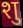
शु